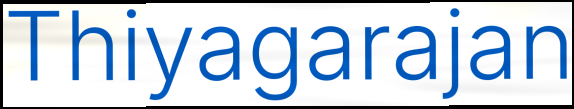
Thiyagarajan